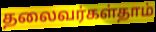
தலைவர்கள்தாம்